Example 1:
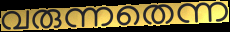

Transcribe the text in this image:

വരുന്നതെന്ന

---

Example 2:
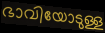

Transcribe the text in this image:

ഭാവിയോടുള്ള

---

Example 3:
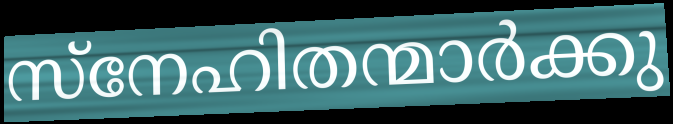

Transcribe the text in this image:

സ്നേഹിതന്മാർക്കു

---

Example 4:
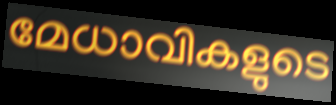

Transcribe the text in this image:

മേധാവികളുടെ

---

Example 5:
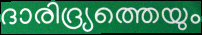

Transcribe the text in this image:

ദാരിദ്ര്യത്തെയും